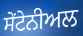
ਸੇਂਟੇਨੀਅਲ